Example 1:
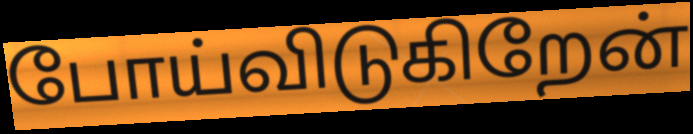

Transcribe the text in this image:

போய்விடுகிறேன்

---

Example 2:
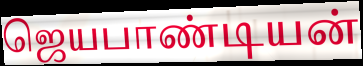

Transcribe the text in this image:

ஜெயபாண்டியன்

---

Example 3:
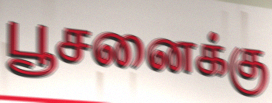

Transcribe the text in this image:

பூசனைக்கு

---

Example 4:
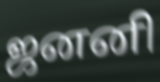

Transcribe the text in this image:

ஜனனி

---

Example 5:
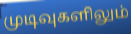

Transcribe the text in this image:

முடிவுகளிலும்